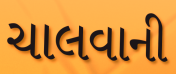
ચાલવાની